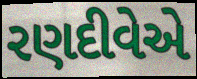
રણદીવેએ